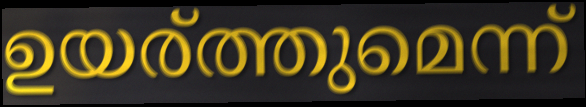
ഉയര്ത്തുമെന്ന്